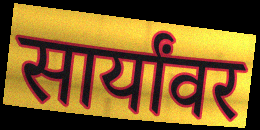
सार्यांवर